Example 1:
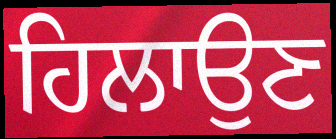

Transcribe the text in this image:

ਹਿਲਾਉਣ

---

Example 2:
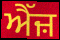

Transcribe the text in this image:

ਐੱਜ਼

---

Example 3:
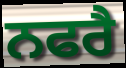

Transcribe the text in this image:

ਨਫਰੈ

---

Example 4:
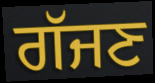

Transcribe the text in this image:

ਗੱਜਣ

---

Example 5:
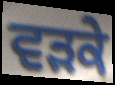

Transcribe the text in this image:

ਵੜਕੇ